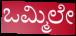
ಒಮ್ಮಿಲೇ